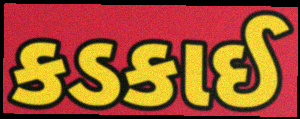
કડકાઈ